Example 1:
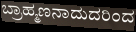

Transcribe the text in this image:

ಬ್ರಾಹ್ಮಣನಾದುದರಿಂದ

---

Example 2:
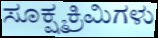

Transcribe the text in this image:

ಸೂಕ್ಷ್ಮಕ್ರಿಮಿಗಳು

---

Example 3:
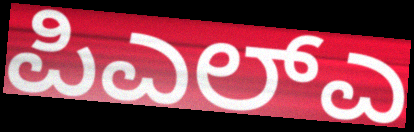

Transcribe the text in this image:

ಪಿಎಲ್ಎ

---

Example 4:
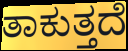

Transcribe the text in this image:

ತಾಕುತ್ತದೆ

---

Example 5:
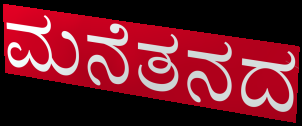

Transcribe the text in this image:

ಮನೆತನದ